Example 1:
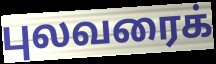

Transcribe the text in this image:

புலவரைக்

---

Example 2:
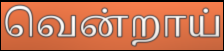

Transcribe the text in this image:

வென்றாய்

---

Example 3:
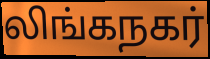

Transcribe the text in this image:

லிங்கநகர்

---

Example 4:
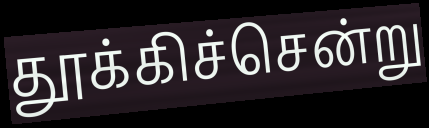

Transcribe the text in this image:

தூக்கிச்சென்று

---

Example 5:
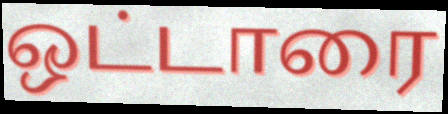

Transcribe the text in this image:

ஒட்டாரை